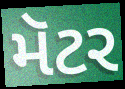
મૅટર